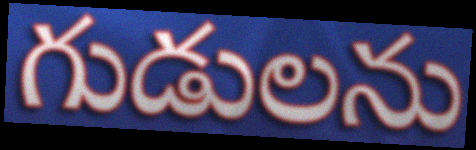
గుడులను